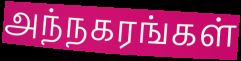
அந்நகரங்கள்